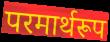
परमार्थरूप